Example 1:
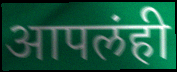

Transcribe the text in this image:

आपलंही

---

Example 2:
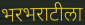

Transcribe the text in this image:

भरभराटीला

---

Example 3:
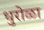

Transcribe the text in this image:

धुरोळा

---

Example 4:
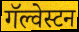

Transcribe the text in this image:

गॅल्वेस्टन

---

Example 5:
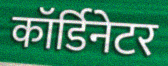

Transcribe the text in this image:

कॉर्डिनेटर